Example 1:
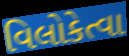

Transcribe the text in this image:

વિલોકેત્વા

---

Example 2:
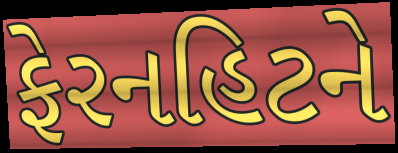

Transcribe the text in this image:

ફેરનહિટને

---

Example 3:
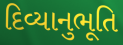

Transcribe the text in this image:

દિવ્યાનુભૂતિ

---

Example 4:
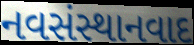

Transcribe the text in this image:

નવસંસ્થાનવાદ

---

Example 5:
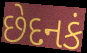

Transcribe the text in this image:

છેદનકં